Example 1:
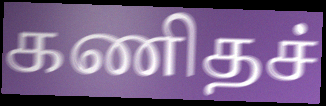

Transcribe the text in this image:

கணிதச்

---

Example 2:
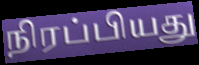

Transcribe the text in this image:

நிரப்பியது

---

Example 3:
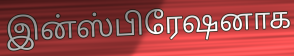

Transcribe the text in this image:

இன்ஸ்பிரேஷனாக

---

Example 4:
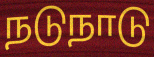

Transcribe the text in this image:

நடுநாடு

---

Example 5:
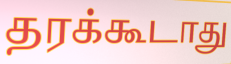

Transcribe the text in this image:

தரக்கூடாது